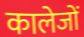
कालेजों